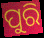
ପୁରି